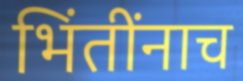
भिंतींनाच